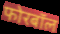
फोरबॉल